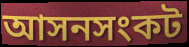
আসনসংকট